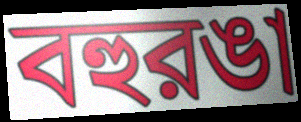
বহুরঙা